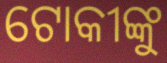
ଟୋକୀଙ୍କୁ